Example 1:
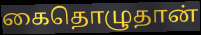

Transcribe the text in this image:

கைதொழுதான்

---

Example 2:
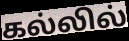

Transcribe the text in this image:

கல்லில்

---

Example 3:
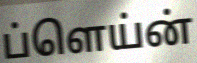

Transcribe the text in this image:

ப்ளெய்ன்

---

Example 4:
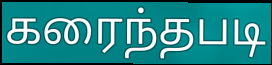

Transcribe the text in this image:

கரைந்தபடி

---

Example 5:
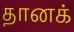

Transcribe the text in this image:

தானக்